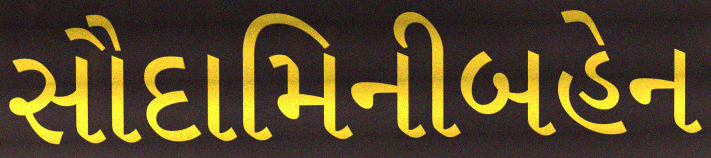
સૌદામિનીબહેન